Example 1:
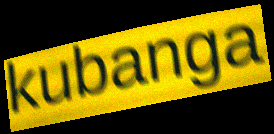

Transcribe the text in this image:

kubanga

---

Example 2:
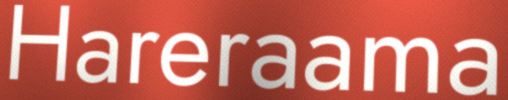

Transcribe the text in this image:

Hareraama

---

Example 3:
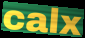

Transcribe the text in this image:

calx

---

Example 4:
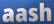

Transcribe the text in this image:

aash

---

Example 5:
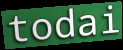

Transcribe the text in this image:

todai